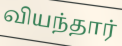
வியந்தார்